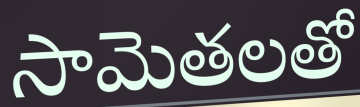
సామెతలతో